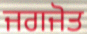
ਜਗਜੋਤ